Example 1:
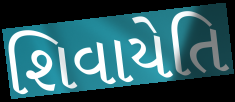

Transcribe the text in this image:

શિવાયેતિ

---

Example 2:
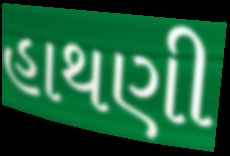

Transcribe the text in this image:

હાથણી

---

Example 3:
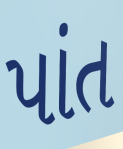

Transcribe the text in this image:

પાંત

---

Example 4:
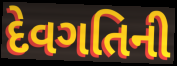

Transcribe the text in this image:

દેવગતિની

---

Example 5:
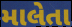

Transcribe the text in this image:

માલેતા